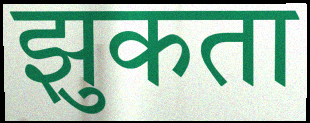
झुकता